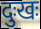
दुःखः